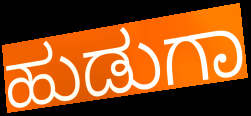
ಹುಡುಗಾ